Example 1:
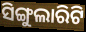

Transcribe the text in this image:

ସିଙ୍ଗୁଲାରିଟି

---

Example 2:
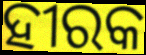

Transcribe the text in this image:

ହୀରକ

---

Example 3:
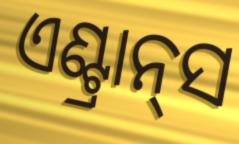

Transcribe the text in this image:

ଏଣ୍ଟ୍ରାନ୍‍ସ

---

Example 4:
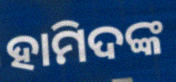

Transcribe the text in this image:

ହାମିଦଙ୍କ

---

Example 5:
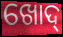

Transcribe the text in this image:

ଖୋଦ୍